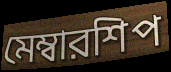
মেম্বারশিপ